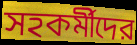
সহকর্মীদের